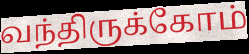
வந்திருக்கோம்